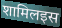
शामिलइस